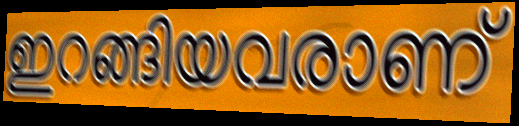
ഇറങ്ങിയവരാണ്